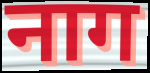
नाग